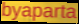
byaparta